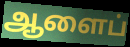
ஆளைப்